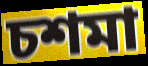
চশমা